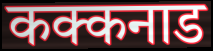
कक्कनाड